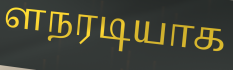
ளநரடியாக